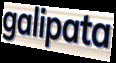
galipata